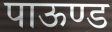
पाऊण्ड